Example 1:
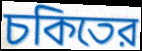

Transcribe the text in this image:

চকিতের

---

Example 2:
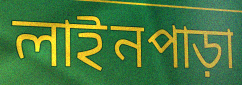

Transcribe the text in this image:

লাইনপাড়া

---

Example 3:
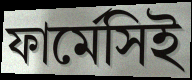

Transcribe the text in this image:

ফার্মেসিই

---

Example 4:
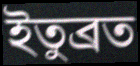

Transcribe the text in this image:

ইতুব্রত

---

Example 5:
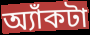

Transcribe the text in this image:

অ্যাঁকটা